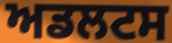
ਅਡਲਟਸ